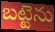
బట్టెను